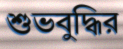
শুভবুদ্ধির